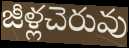
జీళ్లచెరువు